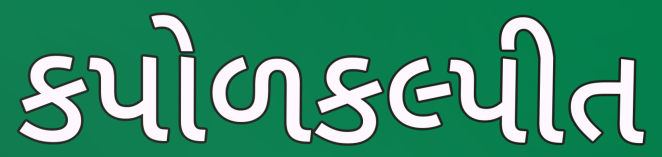
કપોળકલ્પીત